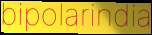
bipolarindia